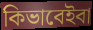
কিভাবেইবা